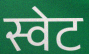
स्वेट